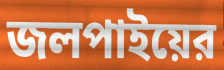
জলপাইয়ের